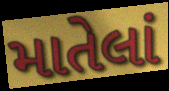
માતેલાં